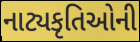
નાટ્યકૃતિઓની